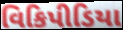
વિકિપીડિયા